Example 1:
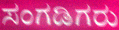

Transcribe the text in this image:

ಸಂಗಡಿಗರು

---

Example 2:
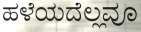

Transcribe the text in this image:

ಹಳೆಯದೆಲ್ಲವೂ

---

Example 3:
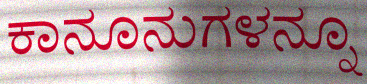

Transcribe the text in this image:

ಕಾನೂನುಗಳನ್ನೂ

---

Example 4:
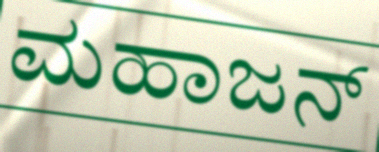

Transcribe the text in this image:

ಮಹಾಜನ್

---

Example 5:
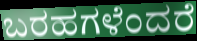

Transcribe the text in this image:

ಬರಹಗಳೆಂದರೆ